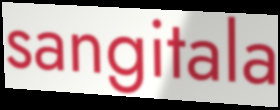
sangitala